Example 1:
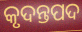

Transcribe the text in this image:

କୃଦନ୍ତପଦ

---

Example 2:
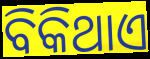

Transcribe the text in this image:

ବିକିଥାଏ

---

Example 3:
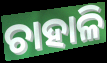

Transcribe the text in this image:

ଚାହାଳି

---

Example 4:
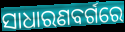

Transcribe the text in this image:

ସାଧାରଣବର୍ଗରେ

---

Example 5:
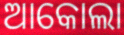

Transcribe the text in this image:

ଆକୋଲା